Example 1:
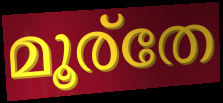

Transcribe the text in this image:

മൂര്തേ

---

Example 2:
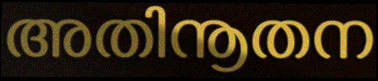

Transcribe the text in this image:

അതിനൂതന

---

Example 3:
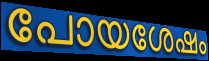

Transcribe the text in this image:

പോയശേഷം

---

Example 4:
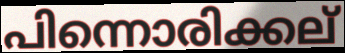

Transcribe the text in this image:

പിന്നൊരിക്കല്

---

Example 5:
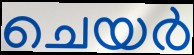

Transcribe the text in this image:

ചെയർ